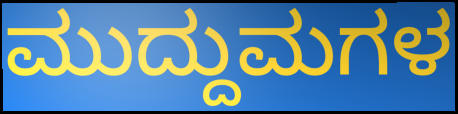
ಮುದ್ದುಮಗಳ